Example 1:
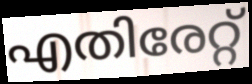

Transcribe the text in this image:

എതിരേറ്റ്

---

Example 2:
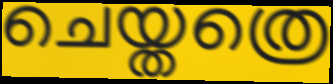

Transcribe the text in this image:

ചെയ്തത്രെ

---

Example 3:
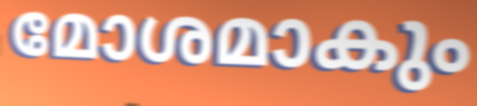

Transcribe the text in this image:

മോശമാകും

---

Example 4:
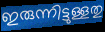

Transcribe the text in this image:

ഇരുന്നിട്ടുള്ളതു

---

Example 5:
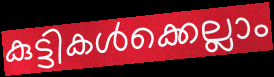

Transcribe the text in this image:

കുട്ടികൾക്കെല്ലാം